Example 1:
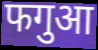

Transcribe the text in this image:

फगुआ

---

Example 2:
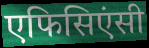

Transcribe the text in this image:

एफिसिएंसी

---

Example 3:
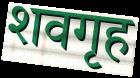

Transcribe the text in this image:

शवगृह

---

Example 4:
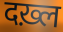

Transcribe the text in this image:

दख़्ल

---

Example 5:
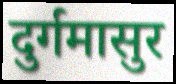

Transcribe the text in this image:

दुर्गमासुर